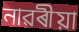
নাৱৰীয়া